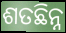
ଶତଛିନ୍ନ